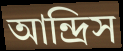
আন্দ্রিস